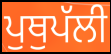
ਪੁਥੁਪੱਲੀ